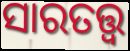
ସାରତତ୍ତ୍ୱ